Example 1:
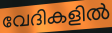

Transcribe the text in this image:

വേദികളിൽ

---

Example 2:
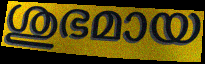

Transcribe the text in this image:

ശുഭമായ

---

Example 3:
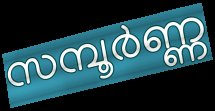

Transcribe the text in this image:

സമ്പൂർണ്ണ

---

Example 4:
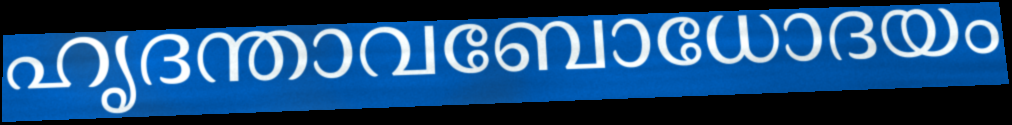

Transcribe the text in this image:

ഹൃദന്താവബോധോദയം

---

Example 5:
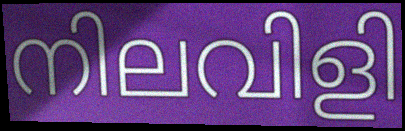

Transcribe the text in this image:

നിലവിളി